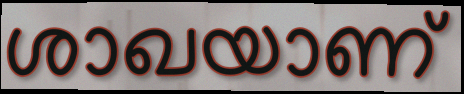
ശാഖയാണ്